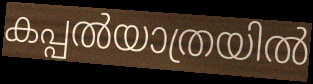
കപ്പൽയാത്രയിൽ